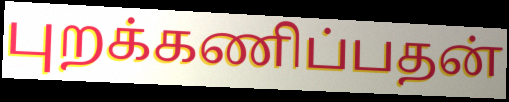
புறக்கணிப்பதன்